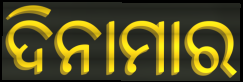
ଦିନାମାର